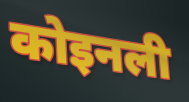
कोइनली